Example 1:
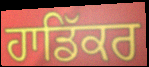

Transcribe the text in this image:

ਹਾਡਿੱਕਰ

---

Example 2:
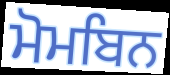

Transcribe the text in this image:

ਮੋਮਬਿਨ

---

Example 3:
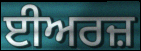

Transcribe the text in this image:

ਈਅਰਜ਼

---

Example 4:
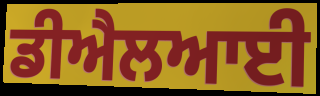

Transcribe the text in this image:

ਡੀਐਲਆਈ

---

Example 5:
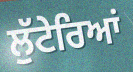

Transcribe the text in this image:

ਲੁੱਟੇਰਿਆਂ